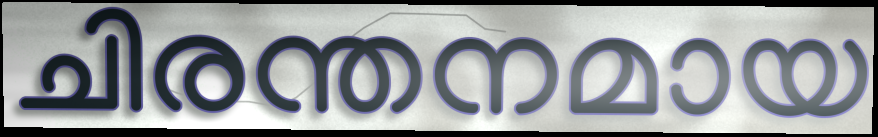
ചിരന്തനമായ